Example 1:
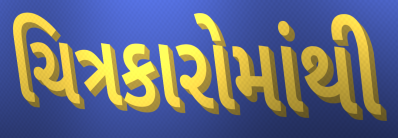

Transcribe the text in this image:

ચિત્રકારોમાંથી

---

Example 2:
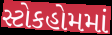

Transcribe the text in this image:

સ્ટોકહોમમાં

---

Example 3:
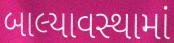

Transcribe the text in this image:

બાલ્યાવસ્થામાં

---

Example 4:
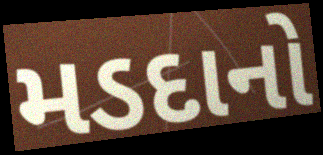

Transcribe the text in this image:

મડદાનો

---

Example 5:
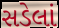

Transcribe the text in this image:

સડેલાં